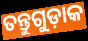
ତନ୍ତୁଗୁଡ଼ାକ